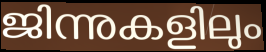
ജിന്നുകളിലും